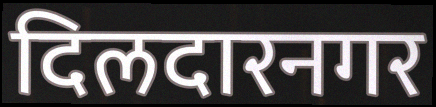
दिलदारनगर